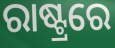
ରାଷ୍ଟ୍ରରେ